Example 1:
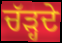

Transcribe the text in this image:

ਚੱੜ੍ਹਦੇ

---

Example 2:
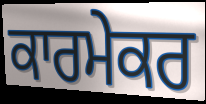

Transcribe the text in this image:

ਕਾਰਮੇਕਰ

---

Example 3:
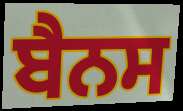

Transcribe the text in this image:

ਬੈਨਸ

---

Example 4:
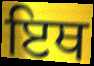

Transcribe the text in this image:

ਇਥ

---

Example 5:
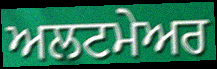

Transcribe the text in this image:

ਅਲਟਮੇਅਰ